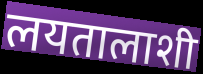
लयतालाशी